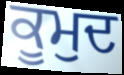
ਕੂਮੁਦ